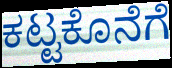
ಕಟ್ಟಕೊನೆಗೆ